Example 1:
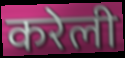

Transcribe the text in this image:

करेली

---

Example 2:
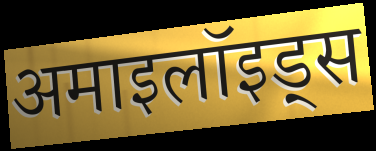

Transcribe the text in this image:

अमाइलॉइड्स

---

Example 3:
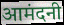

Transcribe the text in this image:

आमंदनी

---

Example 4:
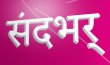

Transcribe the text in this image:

संदभर्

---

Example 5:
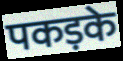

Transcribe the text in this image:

पकड़के